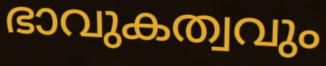
ഭാവുകത്വവും